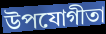
উপযোগীতা